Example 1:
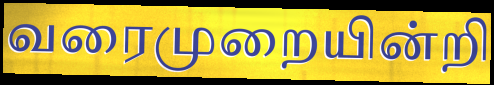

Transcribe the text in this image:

வரைமுறையின்றி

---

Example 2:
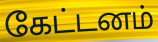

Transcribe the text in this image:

கேட்டனம்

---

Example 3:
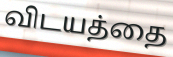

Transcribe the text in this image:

விடயத்தை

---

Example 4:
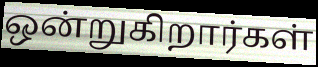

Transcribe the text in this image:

ஒன்றுகிறார்கள்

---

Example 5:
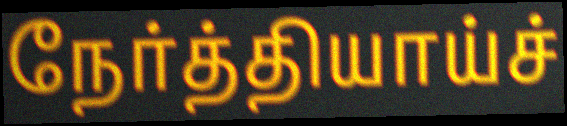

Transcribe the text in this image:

நேர்த்தியாய்ச்